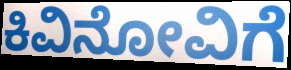
ಕಿವಿನೋವಿಗೆ